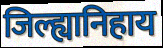
जिल्ह्यानिहाय